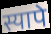
स्यापे